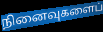
நினைவுகளைப்